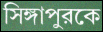
সিঙ্গাপুরকে